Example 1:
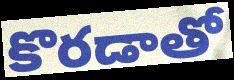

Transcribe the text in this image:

కొరడాతో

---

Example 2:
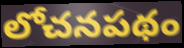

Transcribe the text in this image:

లోచనపథం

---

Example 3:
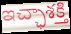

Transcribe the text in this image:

ఇచ్ఛాశక్తి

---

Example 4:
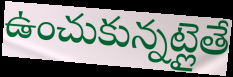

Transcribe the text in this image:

ఉంచుకున్నట్లైతే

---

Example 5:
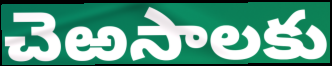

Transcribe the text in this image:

చెఱసాలకు